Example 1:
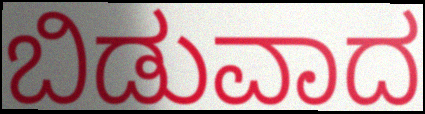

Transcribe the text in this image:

ಬಿಡುವಾದ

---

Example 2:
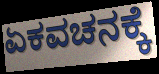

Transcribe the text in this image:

ಏಕವಚನಕ್ಕೆ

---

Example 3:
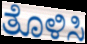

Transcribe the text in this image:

ತೊಳಿಸಿ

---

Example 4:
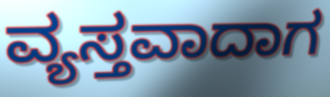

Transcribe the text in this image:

ವ್ಯಸ್ತವಾದಾಗ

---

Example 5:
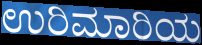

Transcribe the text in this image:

ಉರಿಮಾರಿಯ